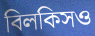
বিলকিসও